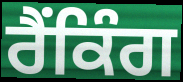
ਰੈੰਕਿੰਗ